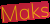
Maks